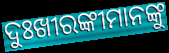
ଦୁଃଖୀରଙ୍କୀମାନଙ୍କୁ